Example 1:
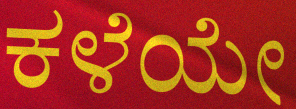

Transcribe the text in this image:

ಕಳೆಯೇ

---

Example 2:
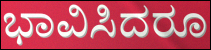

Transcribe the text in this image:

ಭಾವಿಸಿದರೂ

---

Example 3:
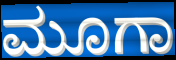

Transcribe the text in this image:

ಮೂಗಾ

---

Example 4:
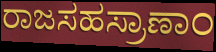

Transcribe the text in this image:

ರಾಜಸಹಸ್ರಾಣಾಂ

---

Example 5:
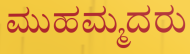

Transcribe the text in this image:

ಮುಹಮ್ಮದರು